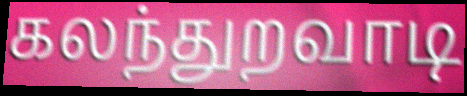
கலந்துறவாடி